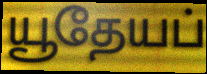
யூதேயப்